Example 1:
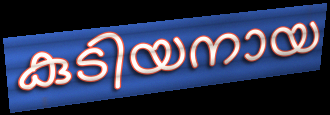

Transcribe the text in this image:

കുടിയനായ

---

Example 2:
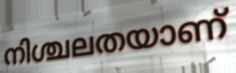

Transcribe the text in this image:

നിശ്ചലതയാണ്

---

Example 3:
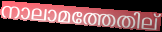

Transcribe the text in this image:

നാലാമത്തേതില്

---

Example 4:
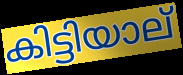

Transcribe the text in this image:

കിട്ടിയാല്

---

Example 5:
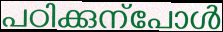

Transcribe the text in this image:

പഠിക്കുന്പോൾ